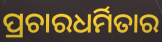
ପ୍ରଚାରଧର୍ମିତାର